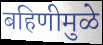
बहिणीमुळे